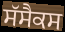
ਸੱਸੈਕਸ